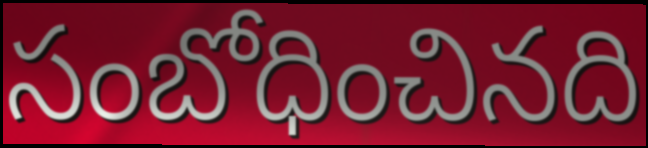
సంబోధించినది